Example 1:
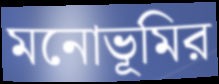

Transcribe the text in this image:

মনোভূমির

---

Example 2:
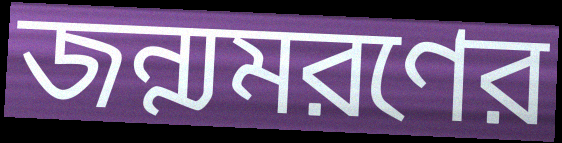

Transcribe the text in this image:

জন্মমরণের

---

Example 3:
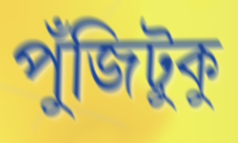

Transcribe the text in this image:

পুঁজিটুকু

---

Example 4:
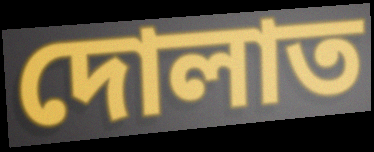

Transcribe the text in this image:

দোলাত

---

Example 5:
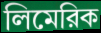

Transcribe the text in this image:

লিমেরিক